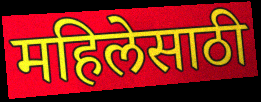
महिलेसाठी